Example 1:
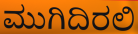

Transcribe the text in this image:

ಮುಗಿದಿರಲಿ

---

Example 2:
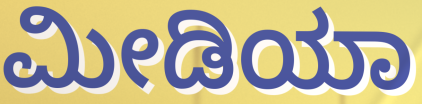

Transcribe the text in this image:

ಮೀಡಿಯಾ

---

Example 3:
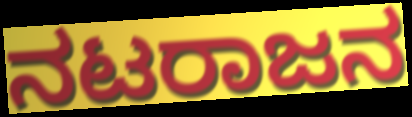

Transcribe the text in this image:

ನಟರಾಜನ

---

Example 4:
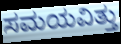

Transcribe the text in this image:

ಸಮಯವಿತ್ತು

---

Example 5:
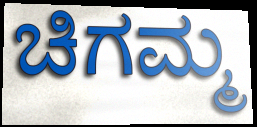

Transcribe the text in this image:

ಚಿಗಮ್ಮ